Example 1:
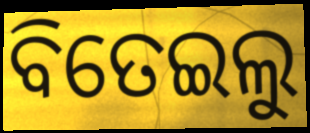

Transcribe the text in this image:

ବିତେଇଲୁ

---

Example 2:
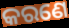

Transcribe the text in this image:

କରଣେ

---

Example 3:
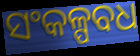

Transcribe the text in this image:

ସଂକଳ୍ପବଧ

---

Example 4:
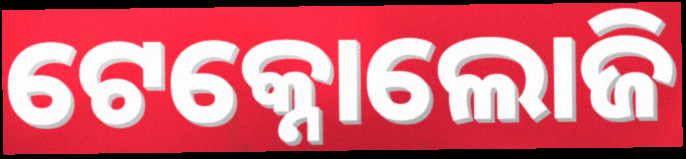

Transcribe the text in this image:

ଟେକ୍ନୋଲୋଜି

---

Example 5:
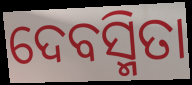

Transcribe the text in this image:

ଦେବସ୍ମିତା